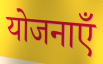
योजनाएँ